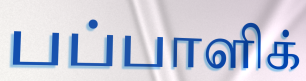
பப்பாளிக்